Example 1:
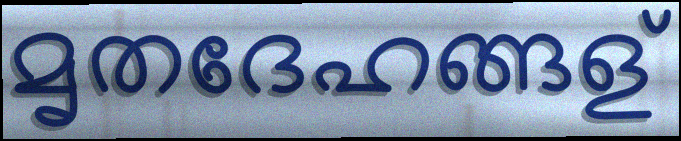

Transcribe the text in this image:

മൃതദേഹങ്ങള്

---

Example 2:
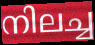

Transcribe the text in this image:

നിലച്ച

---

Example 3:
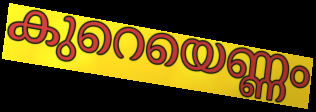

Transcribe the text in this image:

കുറെയെണ്ണം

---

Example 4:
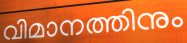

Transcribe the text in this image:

വിമാനത്തിനും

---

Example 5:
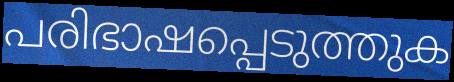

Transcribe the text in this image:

പരിഭാഷപ്പെടുത്തുക